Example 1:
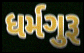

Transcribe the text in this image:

ધર્મગુરૂ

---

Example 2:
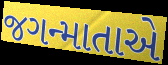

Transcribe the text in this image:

જગન્માતાએ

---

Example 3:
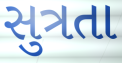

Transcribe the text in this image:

સુત્રતા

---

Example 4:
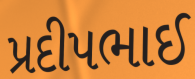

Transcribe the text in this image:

પ્રદીપભાઈ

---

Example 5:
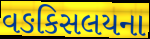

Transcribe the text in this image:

વઙકિસલયના